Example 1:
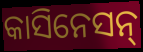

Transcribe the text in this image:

କାସିନେସନ୍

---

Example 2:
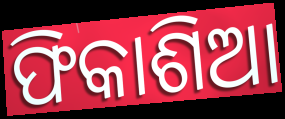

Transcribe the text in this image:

ଫିକାଶିଆ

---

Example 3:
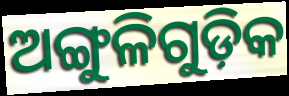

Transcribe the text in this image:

ଅଙ୍ଗୁଳିଗୁଡ଼ିକ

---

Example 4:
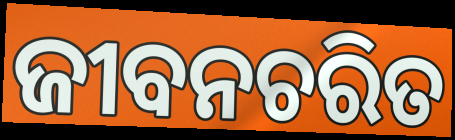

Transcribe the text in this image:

ଜୀବନଚରିତ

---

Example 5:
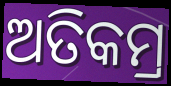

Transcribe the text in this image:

ଅତିକମ୍ର